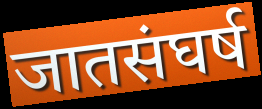
जातसंघर्ष